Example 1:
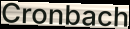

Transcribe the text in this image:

Cronbach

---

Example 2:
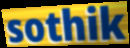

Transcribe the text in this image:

sothik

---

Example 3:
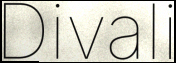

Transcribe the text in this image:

Divali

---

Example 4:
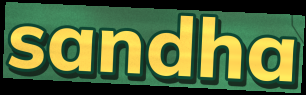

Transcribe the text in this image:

sandha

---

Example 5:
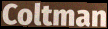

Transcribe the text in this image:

Coltman